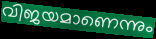
വിജയമാണെന്നും